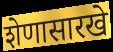
शेणासारखे